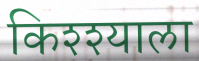
किश्श्याला